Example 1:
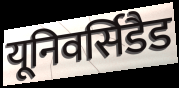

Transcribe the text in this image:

यूनिवर्सिडैड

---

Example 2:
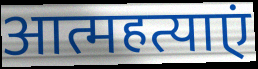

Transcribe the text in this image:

आत्महत्याएं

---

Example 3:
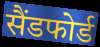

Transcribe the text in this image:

सैंडफोर्ड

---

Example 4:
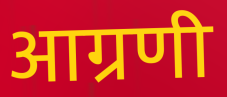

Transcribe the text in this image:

आग्रणी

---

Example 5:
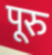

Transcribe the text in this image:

पूरु